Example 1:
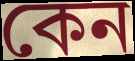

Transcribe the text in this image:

কেন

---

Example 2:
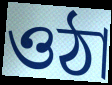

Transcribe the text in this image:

ওঠা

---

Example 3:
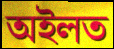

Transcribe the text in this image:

অইলত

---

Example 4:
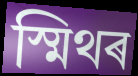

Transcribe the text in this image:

স্মিথৰ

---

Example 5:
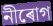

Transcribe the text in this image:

নীৰোগ